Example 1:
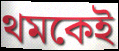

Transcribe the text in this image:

থমকেই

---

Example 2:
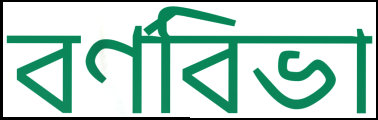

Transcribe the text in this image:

বর্ণবিভা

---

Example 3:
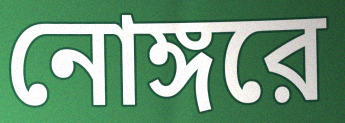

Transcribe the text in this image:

নোঙ্গরে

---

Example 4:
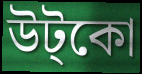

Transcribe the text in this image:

উট্কো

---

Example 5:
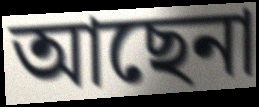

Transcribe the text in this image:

আছেনা